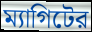
ম্যাগিটের